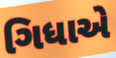
ગિધાએ